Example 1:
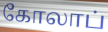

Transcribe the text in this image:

கோலாப்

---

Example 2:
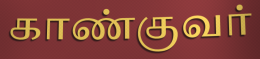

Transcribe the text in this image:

காண்குவர்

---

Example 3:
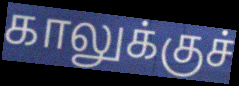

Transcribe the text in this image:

காலுக்குச்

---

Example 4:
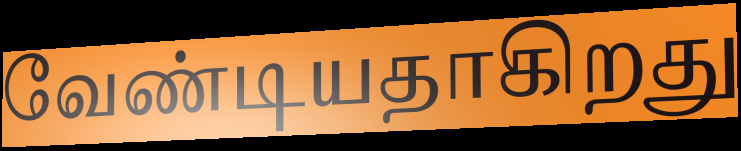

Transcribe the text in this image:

வேண்டியதாகிறது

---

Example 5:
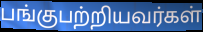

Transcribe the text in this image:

பங்குபற்றியவர்கள்